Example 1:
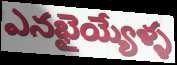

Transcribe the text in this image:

ఎనభైయ్యేళ్ళ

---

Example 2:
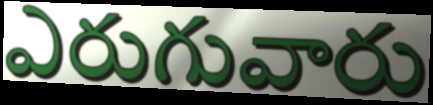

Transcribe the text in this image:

ఎరుగువారు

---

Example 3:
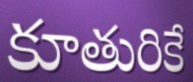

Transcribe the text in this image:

కూతురికే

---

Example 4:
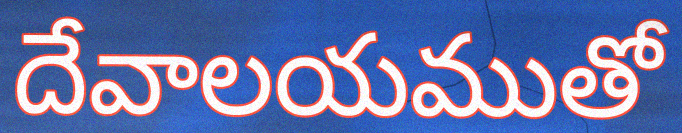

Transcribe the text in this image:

దేవాలయముతో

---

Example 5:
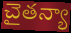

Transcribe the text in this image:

చైతన్యా